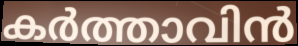
കർത്താവിൻ